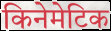
किनेमेटिक